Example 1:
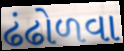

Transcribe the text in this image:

ઢંઢોળવા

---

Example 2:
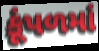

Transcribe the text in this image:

કૂંપળમાં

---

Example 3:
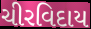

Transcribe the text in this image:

ચીરવિદાય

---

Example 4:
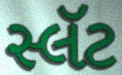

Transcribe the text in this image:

સ્લૅટ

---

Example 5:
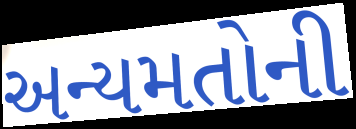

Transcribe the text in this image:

અન્યમતોની